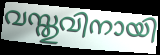
വസ്തുവിനായി